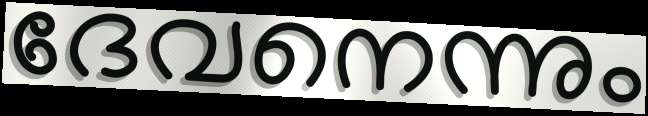
ദേവനെന്നും